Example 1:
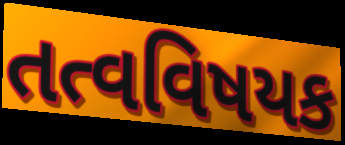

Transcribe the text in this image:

તત્વવિષયક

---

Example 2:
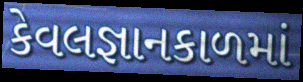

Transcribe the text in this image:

કેવલજ્ઞાનકાળમાં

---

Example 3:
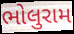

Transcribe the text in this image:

ભોલુરામ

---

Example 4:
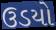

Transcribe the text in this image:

ઉડયો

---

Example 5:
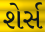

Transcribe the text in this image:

શેર્સ